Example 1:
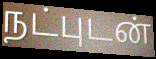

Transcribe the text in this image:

நட்புடன்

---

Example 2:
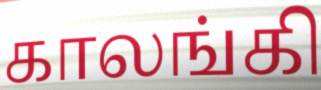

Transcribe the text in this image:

காலங்கி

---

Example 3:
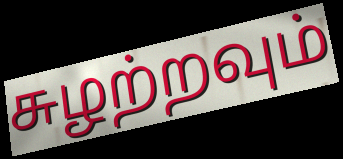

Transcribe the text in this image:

சுழற்றவும்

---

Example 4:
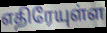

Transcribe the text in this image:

எதிரேயுள்ள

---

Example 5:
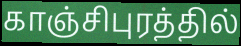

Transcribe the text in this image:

காஞ்சிபுரத்தில்